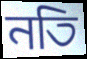
নতি